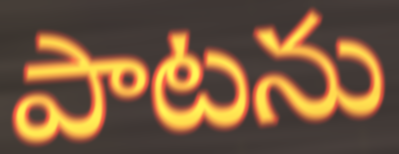
పాటను